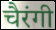
चैरंगी